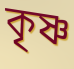
কৃষ্ণ